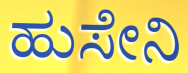
ಹುಸೇನಿ